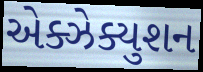
એક્ઝેક્યુશન